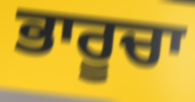
ਭਾਰੂਚਾ